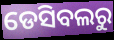
ଡେସିବଲରୁ